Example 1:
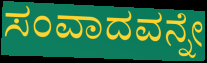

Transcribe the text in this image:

ಸಂವಾದವನ್ನೇ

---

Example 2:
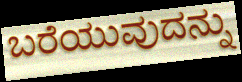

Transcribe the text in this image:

ಬರೆಯುವುದನ್ನು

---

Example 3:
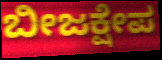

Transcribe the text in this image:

ಬೀಜಕ್ಷೇಪ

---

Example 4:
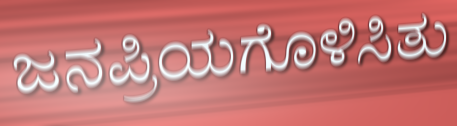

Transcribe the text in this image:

ಜನಪ್ರಿಯಗೊಳಿಸಿತು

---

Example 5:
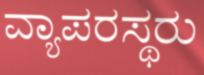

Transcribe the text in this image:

ವ್ಯಾಪರಸ್ಥರು